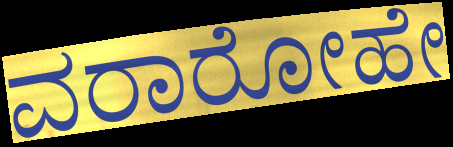
ವರಾರೋಹೇ